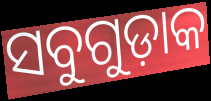
ସବୁଗୁଡ଼ାକ